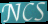
NCS